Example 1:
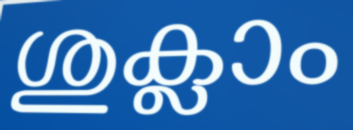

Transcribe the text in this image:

ശുക്ലാം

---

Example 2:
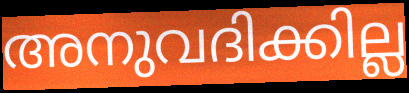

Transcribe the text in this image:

അനുവദിക്കില്ല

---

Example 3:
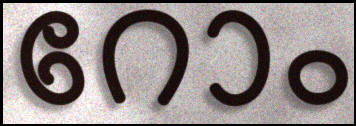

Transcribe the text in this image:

റോം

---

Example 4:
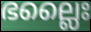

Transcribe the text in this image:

ഭല്ലൈഃ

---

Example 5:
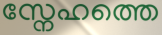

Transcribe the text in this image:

സ്നേഹത്തെ